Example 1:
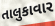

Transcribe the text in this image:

તાલુકાવાર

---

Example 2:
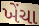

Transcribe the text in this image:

ખેંચા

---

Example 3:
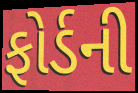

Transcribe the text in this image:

ફોર્ડની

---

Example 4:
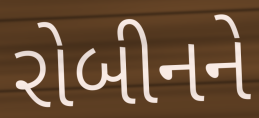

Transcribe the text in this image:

રોબીનને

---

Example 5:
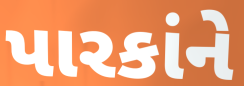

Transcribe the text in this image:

પારકાંને